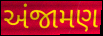
અંજામણ